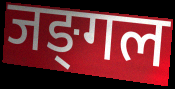
जङ्गल